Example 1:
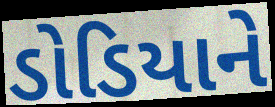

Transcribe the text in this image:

ડોડિયાને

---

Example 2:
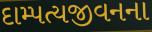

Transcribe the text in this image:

દામ્પત્યજીવનના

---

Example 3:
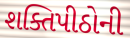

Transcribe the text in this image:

શક્તિપીઠોની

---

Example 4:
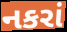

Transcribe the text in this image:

નકરાં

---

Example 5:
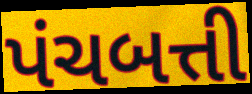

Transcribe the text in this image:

પંચબત્તી